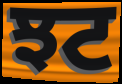
ਝਟ